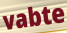
vabte